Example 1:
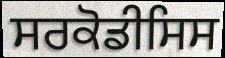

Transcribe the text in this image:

ਸਰਕੋਡੀਸਿਸ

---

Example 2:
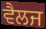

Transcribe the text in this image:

ਵੈਲਜ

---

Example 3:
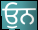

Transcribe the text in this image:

ਓੁਨ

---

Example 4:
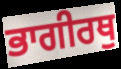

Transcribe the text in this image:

ਭਾਗੀਰਥੁ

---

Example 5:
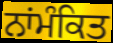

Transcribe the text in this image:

ਨਾਂਮੰਕਿਤ